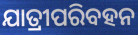
ଯାତ୍ରୀପରିବହନ